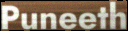
Puneeth